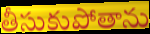
తీసుకుపోతాను